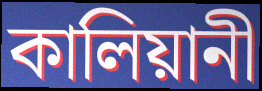
কালিয়ানী